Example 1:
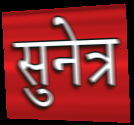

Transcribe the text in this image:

सुनेत्र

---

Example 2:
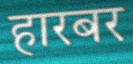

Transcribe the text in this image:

हारबर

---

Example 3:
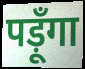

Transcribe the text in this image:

पड़ूँगा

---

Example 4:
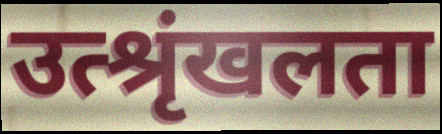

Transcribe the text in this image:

उत्श्रृंखलता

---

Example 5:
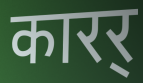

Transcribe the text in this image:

कारर्